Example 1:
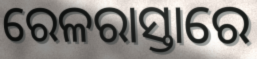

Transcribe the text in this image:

ରେଳରାସ୍ତାରେ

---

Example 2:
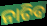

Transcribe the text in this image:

ନାଚିବ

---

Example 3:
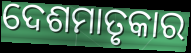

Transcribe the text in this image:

ଦେଶମାତୃକାର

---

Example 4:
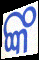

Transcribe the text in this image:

ଙ୍କ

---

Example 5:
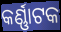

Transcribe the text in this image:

କର୍ଣ୍ଣାଟକ